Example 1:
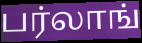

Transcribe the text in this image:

பர்லாங்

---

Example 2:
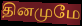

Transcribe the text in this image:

தினமுமே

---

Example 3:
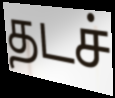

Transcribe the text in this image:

தடச்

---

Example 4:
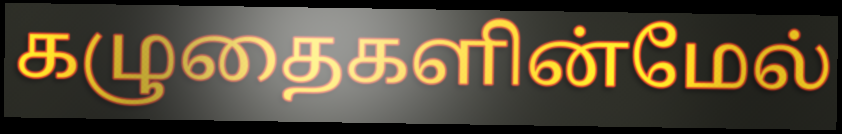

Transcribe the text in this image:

கழுதைகளின்மேல்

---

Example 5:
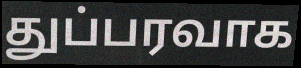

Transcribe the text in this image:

துப்பரவாக